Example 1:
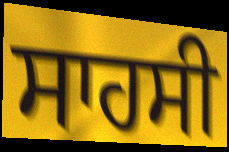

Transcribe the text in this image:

ਸਾਹਸੀ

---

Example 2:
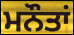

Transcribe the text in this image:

ਮਨੌਤਾਂ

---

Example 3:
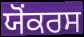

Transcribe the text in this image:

ਯੋੰਕਰਸ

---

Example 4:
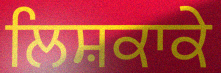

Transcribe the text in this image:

ਲਿਸ਼ਕਾਕੇ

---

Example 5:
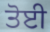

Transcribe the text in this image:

ਤੋਈ